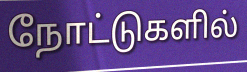
நோட்டுகளில்